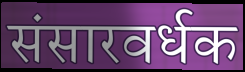
संसारवर्धक